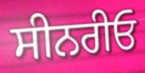
ਸੀਨਰੀਓ